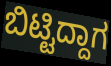
ಬಿಟ್ಟಿದ್ದಾಗ